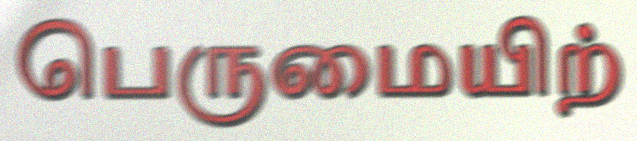
பெருமையிற்